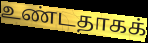
உண்டதாகக்